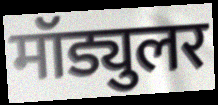
मॉड्युलर